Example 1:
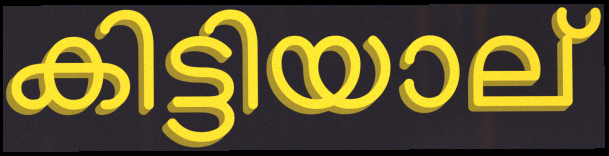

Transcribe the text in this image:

കിട്ടിയാല്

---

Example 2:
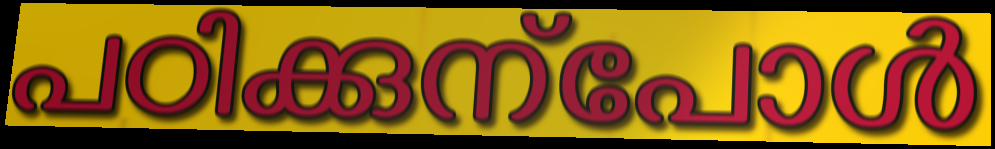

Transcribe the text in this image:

പഠിക്കുന്പോൾ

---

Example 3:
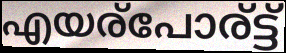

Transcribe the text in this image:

എയര്പോര്ട്ട്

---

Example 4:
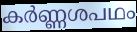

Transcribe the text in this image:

കർണ്ണശപഥം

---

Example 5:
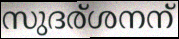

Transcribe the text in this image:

സുദര്ശനന്